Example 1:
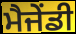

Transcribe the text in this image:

ਮੈਜੇਂਡੀ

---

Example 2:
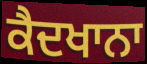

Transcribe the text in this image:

ਕੈਦਖਾਨਾ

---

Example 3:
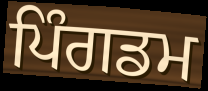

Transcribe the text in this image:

ਪਿੰਗਡਮ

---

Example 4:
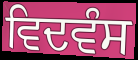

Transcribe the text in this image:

ਵਿਦਵੰਸ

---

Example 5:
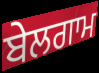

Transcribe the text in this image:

ਬੇਲਗਾਮ